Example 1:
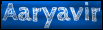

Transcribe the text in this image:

Aaryavir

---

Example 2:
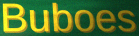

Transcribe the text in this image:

Buboes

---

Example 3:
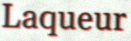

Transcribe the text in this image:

Laqueur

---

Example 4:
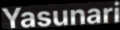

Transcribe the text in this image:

Yasunari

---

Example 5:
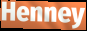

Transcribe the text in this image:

Henney